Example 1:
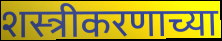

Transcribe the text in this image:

शस्त्रीकरणाच्या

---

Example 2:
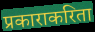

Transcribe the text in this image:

प्रकाराकरिता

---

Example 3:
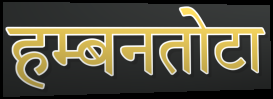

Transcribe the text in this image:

हम्बनतोटा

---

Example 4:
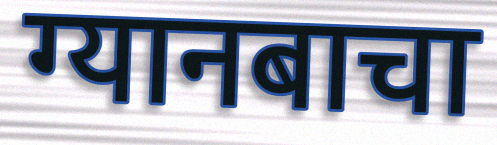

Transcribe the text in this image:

ग्यानबाचा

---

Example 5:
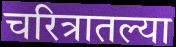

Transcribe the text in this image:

चरित्रातल्या